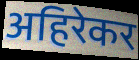
अहिरेकर